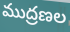
ముద్రణల